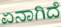
ಏನಾಗಿದೆ